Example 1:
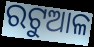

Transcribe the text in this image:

ରଟୁଆଳ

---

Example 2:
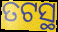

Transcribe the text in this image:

ତଟସ୍ଥ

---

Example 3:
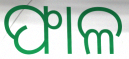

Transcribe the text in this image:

ଫାଳ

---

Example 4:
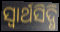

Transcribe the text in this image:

ସ୍ୱାର୍ଥସିଦ୍ଧି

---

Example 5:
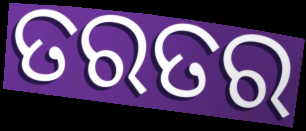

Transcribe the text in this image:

ତରତର